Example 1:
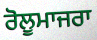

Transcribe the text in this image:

ਰੋਲੂਮਾਜਰਾ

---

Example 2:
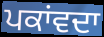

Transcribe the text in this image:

ਪਕਾਂਵਦਾ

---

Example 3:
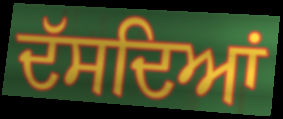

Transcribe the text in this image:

ਦੱਸਦਿਆਂ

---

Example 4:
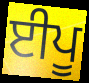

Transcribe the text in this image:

ਈਪੂ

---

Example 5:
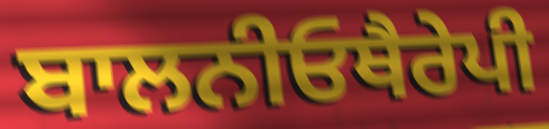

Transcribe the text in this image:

ਬਾਲਨੀਓਥੈਰੇਪੀ